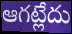
ఆగట్లేదు